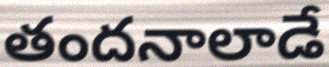
తందనాలాడే